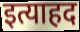
इत्याहद